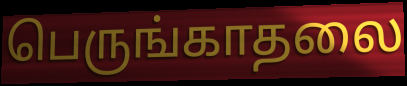
பெருங்காதலை